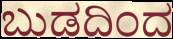
ಬುಡದಿಂದ